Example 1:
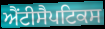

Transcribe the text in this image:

ਐਂਟੀਸੈਪਟਿਕਸ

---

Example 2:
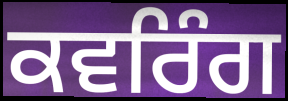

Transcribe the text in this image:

ਕਵਰਿੰਗ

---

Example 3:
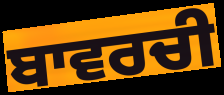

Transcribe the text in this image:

ਬਾਵਰਚੀ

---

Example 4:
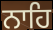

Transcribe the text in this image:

ਨਾਹਿ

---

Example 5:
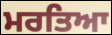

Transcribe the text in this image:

ਮਰਤਿਆ